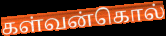
கள்வன்கொல்